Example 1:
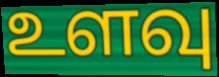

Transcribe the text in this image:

உளவு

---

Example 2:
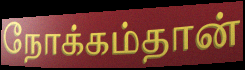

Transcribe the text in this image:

நோக்கம்தான்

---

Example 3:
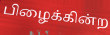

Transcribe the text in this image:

பிழைக்கின்ற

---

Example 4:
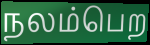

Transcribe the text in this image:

நலம்பெற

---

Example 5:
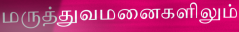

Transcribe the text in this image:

மருத்துவமனைகளிலும்